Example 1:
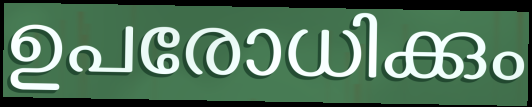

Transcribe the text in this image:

ഉപരോധിക്കും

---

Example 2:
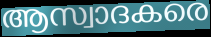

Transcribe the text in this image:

ആസ്വാദകരെ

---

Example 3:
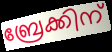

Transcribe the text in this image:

ബ്രേക്കിന്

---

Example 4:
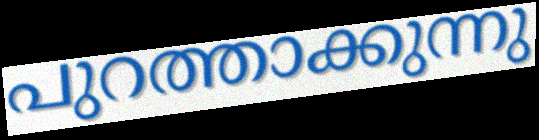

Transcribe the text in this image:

പുറത്താക്കുന്നു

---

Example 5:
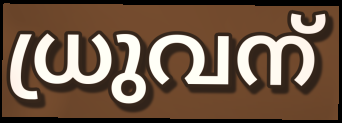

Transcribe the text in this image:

ധ്രുവന്